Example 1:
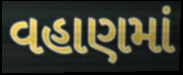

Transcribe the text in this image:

વહાણમાં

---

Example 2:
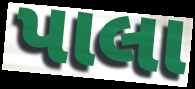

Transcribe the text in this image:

પાલા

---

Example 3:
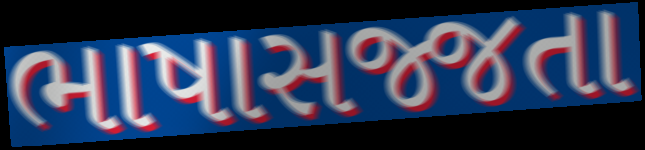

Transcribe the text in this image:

ભાષાસજ્જતા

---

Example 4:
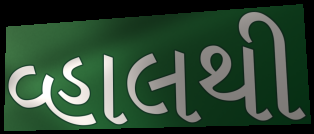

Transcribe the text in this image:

વ્હાલથી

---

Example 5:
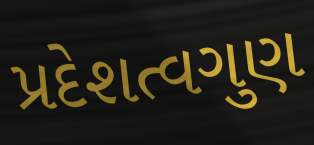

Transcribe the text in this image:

પ્રદેશત્વગુણ